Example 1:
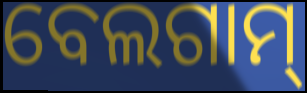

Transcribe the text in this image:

ବେଲଗାମ୍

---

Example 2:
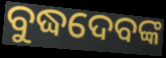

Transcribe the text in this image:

ବୁଦ୍ଧଦେବଙ୍କ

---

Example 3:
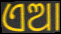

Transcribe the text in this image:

ଏଆ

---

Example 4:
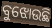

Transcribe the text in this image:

ବୁଝୋଉଛି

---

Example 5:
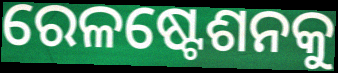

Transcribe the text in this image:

ରେଳଷ୍ଟେଶନକୁ